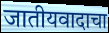
जातीयवादाचा